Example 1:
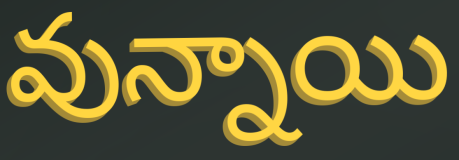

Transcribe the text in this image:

వున్నాయి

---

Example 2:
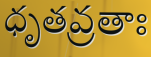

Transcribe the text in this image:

ధృతవ్రతాః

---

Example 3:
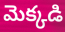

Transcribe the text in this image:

మెక్కడి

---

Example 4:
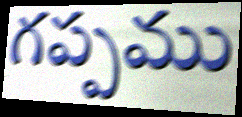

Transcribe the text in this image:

గప్పము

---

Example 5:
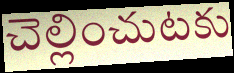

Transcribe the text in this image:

చెల్లించుటకు